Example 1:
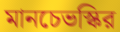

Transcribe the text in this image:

মানচেভস্কির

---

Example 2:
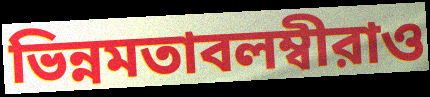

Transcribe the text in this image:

ভিন্নমতাবলম্বীরাও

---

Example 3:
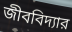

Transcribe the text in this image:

জীববিদ্যার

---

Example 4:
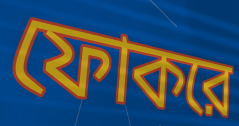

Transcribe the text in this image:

ফোকরে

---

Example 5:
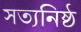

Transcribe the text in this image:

সত্যনিষ্ঠ